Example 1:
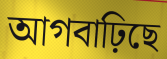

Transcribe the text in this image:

আগবাঢ়িছে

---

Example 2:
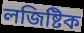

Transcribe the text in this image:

লজিষ্টিক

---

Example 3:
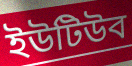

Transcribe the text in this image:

ইউটিউব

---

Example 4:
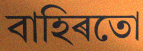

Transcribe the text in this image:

বাহিৰতো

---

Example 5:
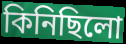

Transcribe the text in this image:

কিনিছিলো